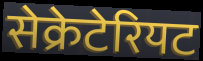
सेक्रेटेरियट